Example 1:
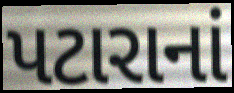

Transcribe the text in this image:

પટારાનાં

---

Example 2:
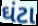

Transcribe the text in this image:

ઘંટા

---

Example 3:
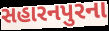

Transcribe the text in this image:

સહારનપુરના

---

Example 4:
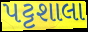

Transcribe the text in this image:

પટ્ટશાલા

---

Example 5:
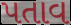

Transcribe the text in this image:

પતાવ